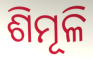
ଶିମୂଳି